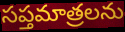
సప్తమాత్రలను